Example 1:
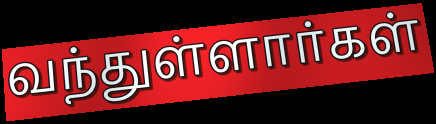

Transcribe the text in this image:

வந்துள்ளார்கள்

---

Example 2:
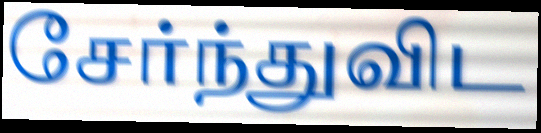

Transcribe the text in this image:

சேர்ந்துவிட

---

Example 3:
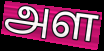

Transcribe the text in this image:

அள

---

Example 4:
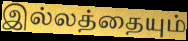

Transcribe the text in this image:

இல்லத்தையும்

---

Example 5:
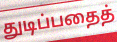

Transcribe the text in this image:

துடிப்பதைத்